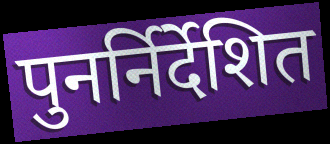
पुनर्निर्देशित